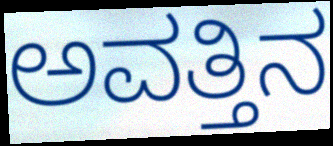
ಅವತ್ತಿನ